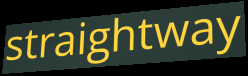
straightway